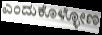
ಎಂದುಕೊಳ್ಳೋಣ